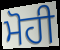
ਮੋਹੀ